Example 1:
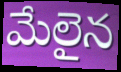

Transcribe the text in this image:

మేలైన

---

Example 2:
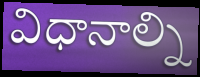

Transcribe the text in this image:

విధానాల్ని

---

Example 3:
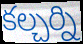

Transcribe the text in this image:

కల్చర్ని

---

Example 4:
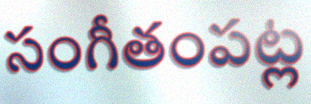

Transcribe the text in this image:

సంగీతంపట్ల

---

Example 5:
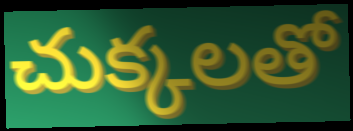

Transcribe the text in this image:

చుక్కలతో